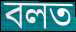
বলত